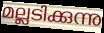
മല്ലടിക്കുന്നു